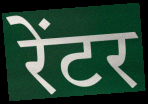
रेंटर